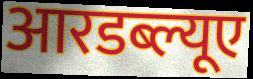
आरडब्ल्यूए